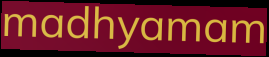
madhyamam